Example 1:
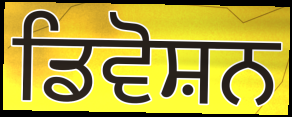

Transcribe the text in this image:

ਡਿਵੋਸ਼ਨ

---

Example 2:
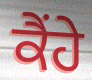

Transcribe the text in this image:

ਕੈਂਹੇ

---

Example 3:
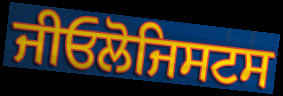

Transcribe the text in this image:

ਜੀਓਲੋਜਿਸਟਸ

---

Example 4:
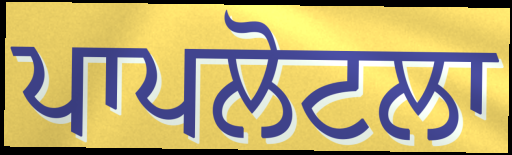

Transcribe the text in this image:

ਪਾਪਲੋਟਲਾ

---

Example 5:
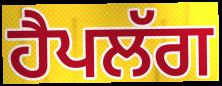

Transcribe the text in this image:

ਹੈਪਲੱਗ